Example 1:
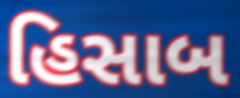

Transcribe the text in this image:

હિસાબ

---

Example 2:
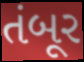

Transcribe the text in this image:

તંબૂર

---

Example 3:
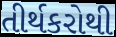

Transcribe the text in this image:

તીર્થકરોથી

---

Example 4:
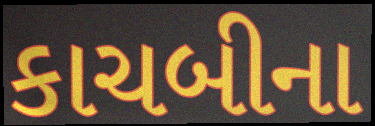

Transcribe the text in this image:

કાચબીના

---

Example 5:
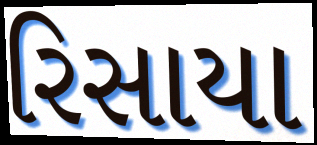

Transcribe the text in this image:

રિસાયા